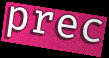
prec